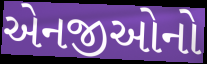
એનજીઓનો